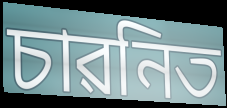
চাৱনিত